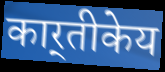
कार्तीकेय